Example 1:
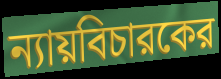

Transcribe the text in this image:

ন্যায়বিচারকের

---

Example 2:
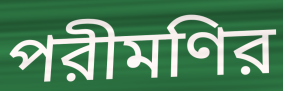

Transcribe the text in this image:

পরীমণির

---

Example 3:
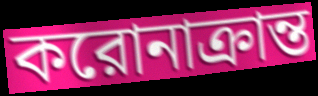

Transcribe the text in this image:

করোনাক্রান্ত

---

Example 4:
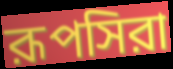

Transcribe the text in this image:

রূপসিরা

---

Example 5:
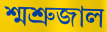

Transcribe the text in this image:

শ্মশ্রুজাল